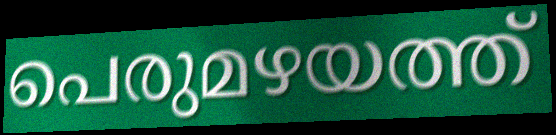
പെരുമഴയത്ത്